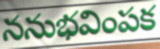
ననుభవింపక